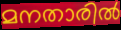
മനതാരിൽ